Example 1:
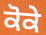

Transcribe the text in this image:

ਕੋਕੇ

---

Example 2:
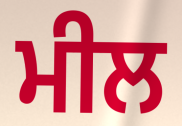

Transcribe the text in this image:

ਮੀਲ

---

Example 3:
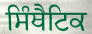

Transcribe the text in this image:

ਸਿੰਥੈਟਿਕ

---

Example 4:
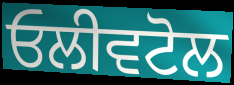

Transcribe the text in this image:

ਓਲੀਵਟੋਲ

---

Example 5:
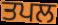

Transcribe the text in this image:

ਤਪਲ